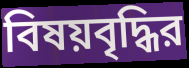
বিষয়বৃদ্ধির